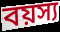
বয়স্য